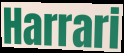
Harrari